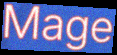
Mage